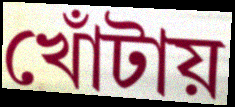
খোঁটায়